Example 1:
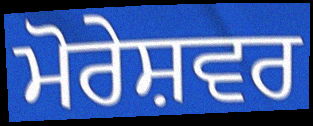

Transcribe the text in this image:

ਮੋਰੇਸ਼ਵਰ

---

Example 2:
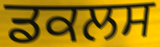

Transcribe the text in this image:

ਡਕਲਸ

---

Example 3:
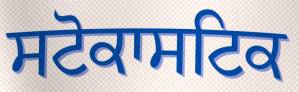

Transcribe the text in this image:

ਸਟੋਕਾਸਟਿਕ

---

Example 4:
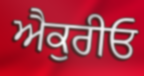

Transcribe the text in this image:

ਐਕੁਰੀਓ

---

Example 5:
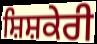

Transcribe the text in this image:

ਸ਼ਿਸ਼ਕੇਰੀ